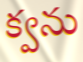
క్వను